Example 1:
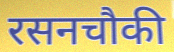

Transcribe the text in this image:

रसनचौकी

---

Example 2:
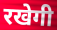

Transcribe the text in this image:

रखेगी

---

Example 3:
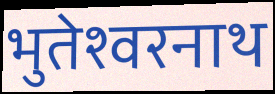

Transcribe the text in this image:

भुतेश्वरनाथ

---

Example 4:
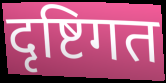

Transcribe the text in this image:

दृष्टिगत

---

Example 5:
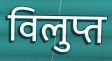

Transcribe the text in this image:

विलुप्त